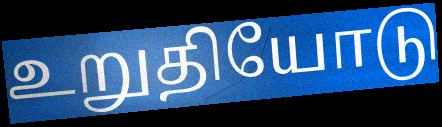
உறுதியோடு